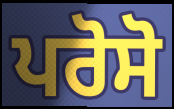
ਪਰੋਸੋ